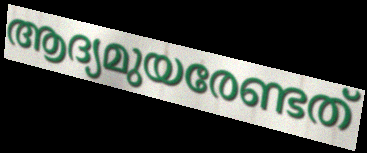
ആദ്യമുയരേണ്ടത്